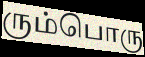
ரும்பொரு